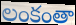
లంకంతా